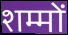
शम्मों